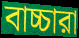
বাচ্চারা